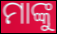
ମାଙ୍କୁ